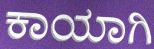
ಕಾಯಾಗಿ